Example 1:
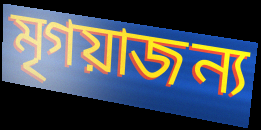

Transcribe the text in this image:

মৃগয়াজন্য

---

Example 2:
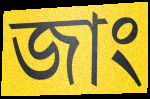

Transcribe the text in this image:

জাং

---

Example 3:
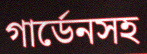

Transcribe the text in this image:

গার্ডেনসহ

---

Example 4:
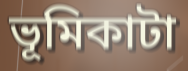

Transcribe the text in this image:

ভূমিকাটা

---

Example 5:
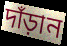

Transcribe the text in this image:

দাঁড়ান